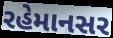
રહેમાનસર